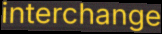
interchange